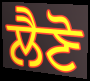
ਲੈਣੋ